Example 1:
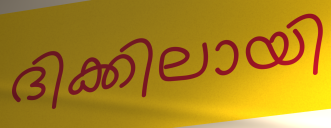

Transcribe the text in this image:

ദിക്കിലായി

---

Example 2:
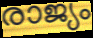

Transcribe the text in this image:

രാജ്യം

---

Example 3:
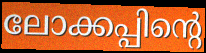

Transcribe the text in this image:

ലോക്കപ്പിന്റെ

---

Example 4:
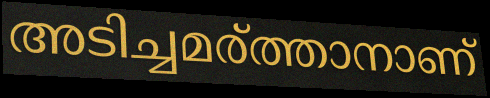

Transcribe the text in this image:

അടിച്ചമര്ത്താനാണ്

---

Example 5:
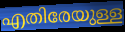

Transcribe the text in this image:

എതിരേയുള്ള